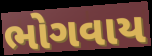
ભોગવાય